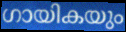
ഗായികയും